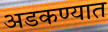
अडकण्यात